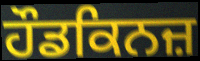
ਹੌਡਕਿਨਜ਼